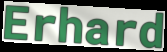
Erhard